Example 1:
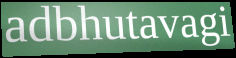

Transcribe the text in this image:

adbhutavagi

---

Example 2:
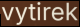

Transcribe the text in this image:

vytirek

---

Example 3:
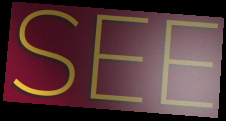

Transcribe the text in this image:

SEE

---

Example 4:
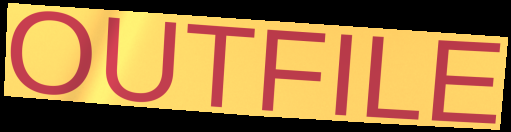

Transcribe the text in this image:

OUTFILE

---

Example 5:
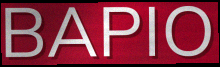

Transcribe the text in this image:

BAPIO